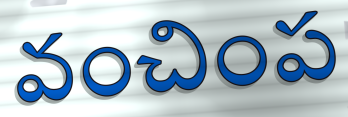
వంచింప